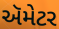
ઍમેટર